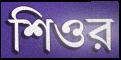
শিওর